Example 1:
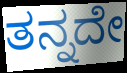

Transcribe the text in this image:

ತನ್ನದೇ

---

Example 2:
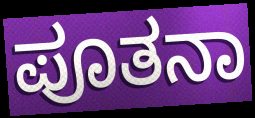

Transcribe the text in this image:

ಪೂತನಾ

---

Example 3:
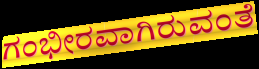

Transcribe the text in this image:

ಗಂಭೀರವಾಗಿರುವಂತೆ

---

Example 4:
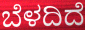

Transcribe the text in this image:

ಬೆಳದಿದೆ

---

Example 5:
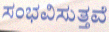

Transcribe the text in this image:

ಸಂಭವಿಸುತ್ತವೆ